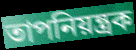
তাপনিয়ন্ত্রক